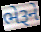
ભેરૂને